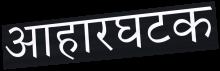
आहारघटक